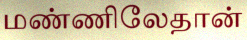
மண்ணிலேதான்